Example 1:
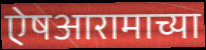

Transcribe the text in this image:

ऐषआरामाच्या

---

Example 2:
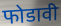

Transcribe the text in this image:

फोडावी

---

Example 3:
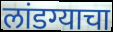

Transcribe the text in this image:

लांडग्याचा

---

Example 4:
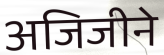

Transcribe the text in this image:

अजिजीने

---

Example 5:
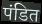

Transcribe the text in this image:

पंडित